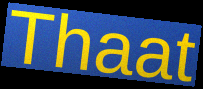
Thaat